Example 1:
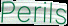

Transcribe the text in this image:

Perils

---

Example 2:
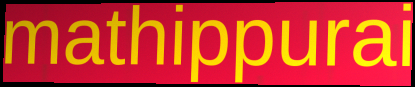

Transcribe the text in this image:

mathippurai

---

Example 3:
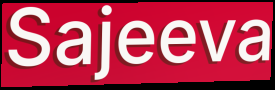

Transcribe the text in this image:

Sajeeva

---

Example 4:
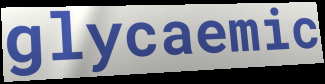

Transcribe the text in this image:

glycaemic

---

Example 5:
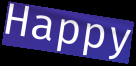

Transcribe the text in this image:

Happy